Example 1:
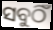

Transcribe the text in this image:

ସବୁଠିଁ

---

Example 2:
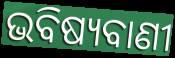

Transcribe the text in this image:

ଭବିଷ୍ୟବାଣୀ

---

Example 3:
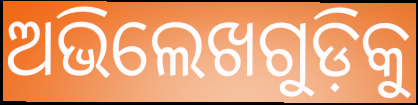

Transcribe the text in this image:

ଅଭିଲେଖଗୁଡ଼ିକୁ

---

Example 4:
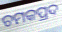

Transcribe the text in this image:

ଚମକପ୍ରଦ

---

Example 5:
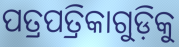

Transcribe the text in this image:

ପତ୍ରପତ୍ରିକାଗୁଡ଼ିକୁ